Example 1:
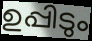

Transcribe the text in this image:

ഉപ്പിടും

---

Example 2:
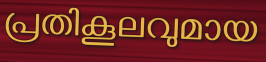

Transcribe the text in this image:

പ്രതികൂലവുമായ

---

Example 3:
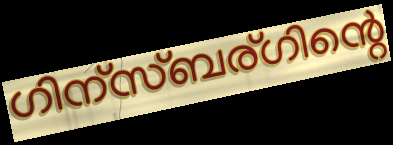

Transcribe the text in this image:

ഗിന്സ്ബര്ഗിന്റെ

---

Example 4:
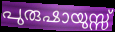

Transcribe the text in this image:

പുരുഷായുസ്സ്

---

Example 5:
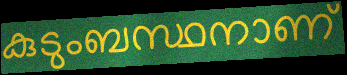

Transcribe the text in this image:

കുടുംബസ്ഥനാണ്